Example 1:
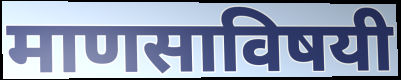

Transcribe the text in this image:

माणसाविषयी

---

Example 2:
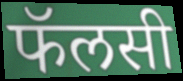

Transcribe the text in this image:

फॅलसी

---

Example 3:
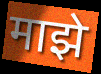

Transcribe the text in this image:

माझे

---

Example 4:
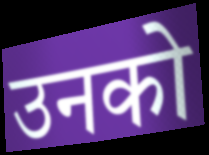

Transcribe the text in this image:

उनको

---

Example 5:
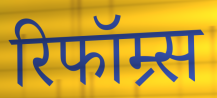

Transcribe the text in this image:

रिफॉम्र्स